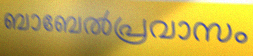
ബാബേൽപ്രവാസം